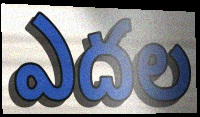
ఎదల